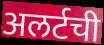
अलर्टची